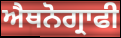
ਐਥਨੋਗ੍ਰਾਫੀ